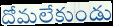
దోమలేకుండు